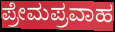
ಪ್ರೇಮಪ್ರವಾಹ